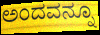
ಅಂದವನ್ನೂ